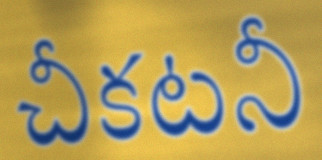
చీకటనీ